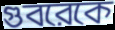
গুবরেকে